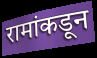
रामांकडून